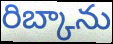
రిబ్కాను